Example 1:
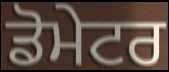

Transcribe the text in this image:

ਡੋਮੇਟਰ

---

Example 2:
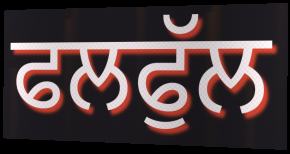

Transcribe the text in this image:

ਫਲਫੁੱਲ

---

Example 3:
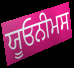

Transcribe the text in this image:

ਯੂਓਨੀਮਸ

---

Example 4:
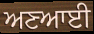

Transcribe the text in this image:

ਅਣਆਈ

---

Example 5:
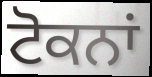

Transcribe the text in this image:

ਟੋਕਨਾਂ